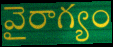
వైరాగ్యం